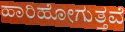
ಹಾರಿಹೋಗುತ್ತವೆ